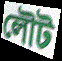
লৌট